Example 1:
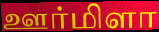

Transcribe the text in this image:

ஊர்மிளா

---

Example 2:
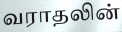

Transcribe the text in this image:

வராதலின்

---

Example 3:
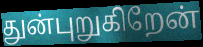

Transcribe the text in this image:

துன்புறுகிறேன்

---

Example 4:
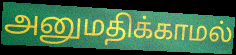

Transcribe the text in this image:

அனுமதிக்காமல்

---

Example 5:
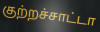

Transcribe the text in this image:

குற்றச்சாட்டா